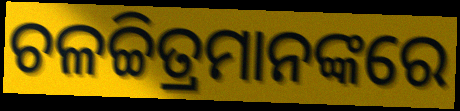
ଚଳଚ୍ଚିତ୍ରମାନଙ୍କରେ